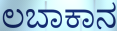
ಲಬಾಕಾನ